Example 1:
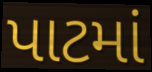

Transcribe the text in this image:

પાટમાં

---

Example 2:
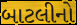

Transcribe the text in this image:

બાટલીનો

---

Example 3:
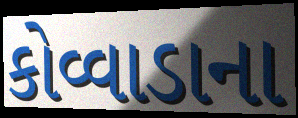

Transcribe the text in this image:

કોવ્વાડાના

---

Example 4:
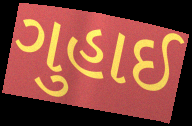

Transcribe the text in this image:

ગુહાઈ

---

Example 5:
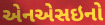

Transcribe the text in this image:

એનએસઇનો